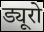
ड्यूरो